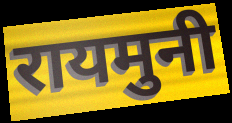
रायमुनी